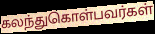
கலந்துகொள்பவர்கள்